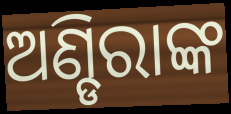
ଅଣ୍ଡିରାଙ୍କ